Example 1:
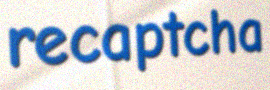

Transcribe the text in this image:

recaptcha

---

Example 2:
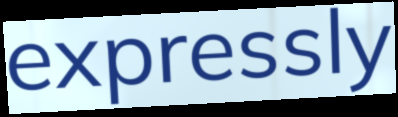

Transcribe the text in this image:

expressly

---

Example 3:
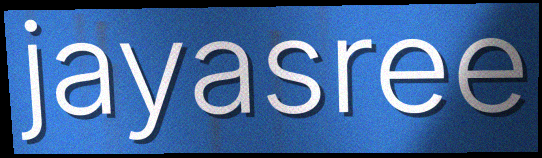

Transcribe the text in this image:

jayasree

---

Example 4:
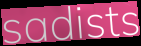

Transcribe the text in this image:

sadists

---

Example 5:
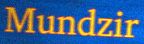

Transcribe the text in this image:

Mundzir